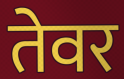
तेवर